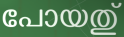
പോയതു്